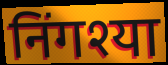
निंगश्या